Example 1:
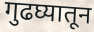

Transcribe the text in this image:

गुढघ्यातून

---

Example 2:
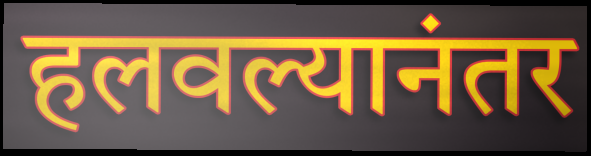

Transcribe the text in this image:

हलवल्यानंतर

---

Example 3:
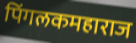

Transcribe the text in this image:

पिंगलकमहाराज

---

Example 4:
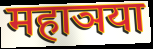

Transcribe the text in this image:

महाञया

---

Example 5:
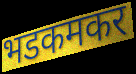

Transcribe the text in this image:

भडकमकर